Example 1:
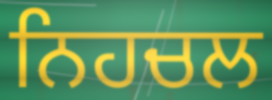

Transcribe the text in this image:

ਨਿਹਚਲ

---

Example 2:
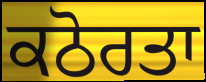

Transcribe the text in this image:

ਕਠੋਰਤਾ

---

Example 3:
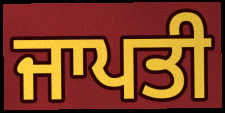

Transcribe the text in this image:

ਜਾਪਤੀ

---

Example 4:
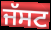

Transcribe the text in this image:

ਜੱਸਟ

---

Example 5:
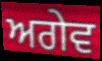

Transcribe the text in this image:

ਅਗੇਵ